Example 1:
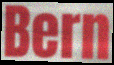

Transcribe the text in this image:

Bern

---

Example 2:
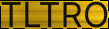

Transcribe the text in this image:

TLTRO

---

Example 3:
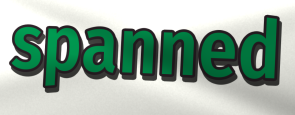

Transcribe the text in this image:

spanned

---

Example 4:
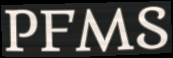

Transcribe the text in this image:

PFMS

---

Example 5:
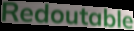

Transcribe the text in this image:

Redoutable